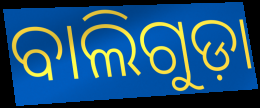
ବାଲିଗୁଡ଼ା